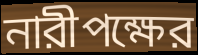
নারীপক্ষের